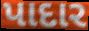
પાદાર